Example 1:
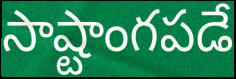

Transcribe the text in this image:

సాష్టాంగపడే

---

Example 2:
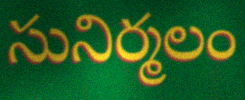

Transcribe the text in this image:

సునిర్మలం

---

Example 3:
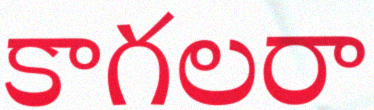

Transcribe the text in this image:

కాగలరా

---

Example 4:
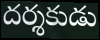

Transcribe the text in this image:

దర్శకుడు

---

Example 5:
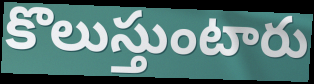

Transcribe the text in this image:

కొలుస్తుంటారు